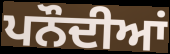
ਪਨੌਦੀਆਂ